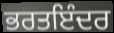
ਭਰਤਇੰਦਰ